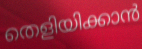
തെളിയിക്കാൻ